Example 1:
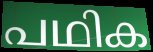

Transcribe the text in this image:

പഥിക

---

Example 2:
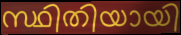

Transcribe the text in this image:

സ്ഥിതിയായി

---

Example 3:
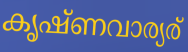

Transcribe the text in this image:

കൃഷ്ണവാര്യര്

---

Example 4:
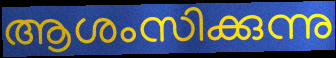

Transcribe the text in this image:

ആശംസിക്കുന്നു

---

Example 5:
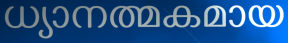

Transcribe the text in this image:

ധ്യാനത്മകമായ